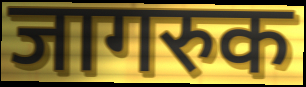
जागरुक